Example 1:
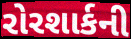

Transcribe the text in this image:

રોરશાર્કની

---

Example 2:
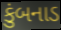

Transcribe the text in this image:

કુંબનાડ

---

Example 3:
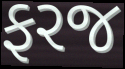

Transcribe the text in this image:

ફરજ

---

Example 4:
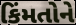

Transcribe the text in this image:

કિંમતોને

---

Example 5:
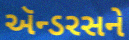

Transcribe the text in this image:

ઍન્ડરસને